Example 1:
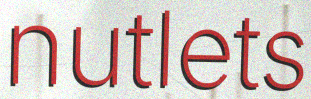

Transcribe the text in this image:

nutlets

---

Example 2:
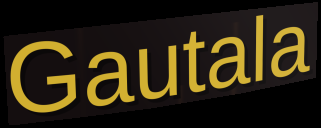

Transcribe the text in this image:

Gautala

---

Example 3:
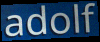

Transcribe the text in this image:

adolf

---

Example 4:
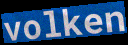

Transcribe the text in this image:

volken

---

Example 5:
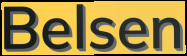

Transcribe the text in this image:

Belsen